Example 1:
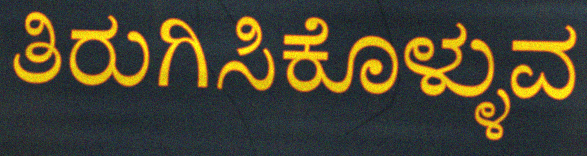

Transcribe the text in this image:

ತಿರುಗಿಸಿಕೊಳ್ಳುವ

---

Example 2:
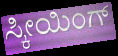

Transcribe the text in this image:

ಸ್ಕೀಯಿಂಗ್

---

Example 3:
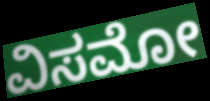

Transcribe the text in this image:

ವಿಸಮೋ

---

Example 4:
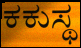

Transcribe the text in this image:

ಕಕುಸ್ಥ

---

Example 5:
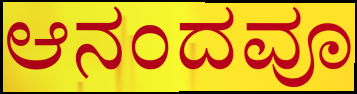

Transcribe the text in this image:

ಆನಂದವೂ